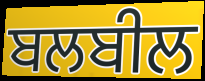
ਬਲਬੀਲ